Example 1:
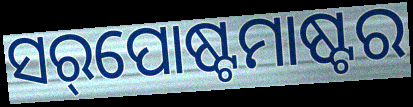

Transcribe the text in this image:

ସର୍‌ପୋଷ୍ଟମାଷ୍ଟର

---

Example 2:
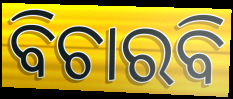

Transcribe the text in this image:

ବିଚାରବି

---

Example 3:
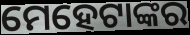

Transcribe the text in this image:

ମେହେଟାଙ୍କର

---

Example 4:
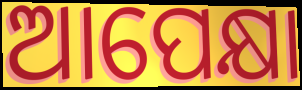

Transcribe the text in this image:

ଆପେକ୍ଷା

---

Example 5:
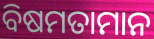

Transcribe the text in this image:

ବିଷମତାମାନ